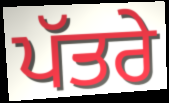
ਪੱਤਰੇ